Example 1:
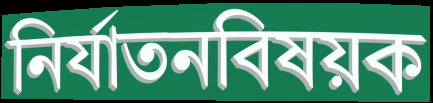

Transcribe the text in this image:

নির্যাতনবিষয়ক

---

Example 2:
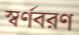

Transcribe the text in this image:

স্বর্ণবরণ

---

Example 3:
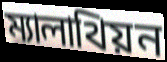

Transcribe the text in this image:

ম্যালাথিয়ন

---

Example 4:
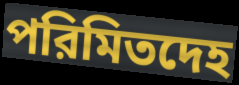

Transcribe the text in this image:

পরিমিতদেহ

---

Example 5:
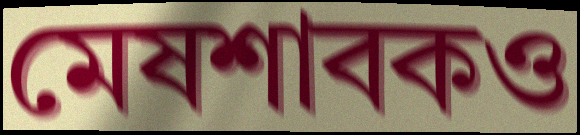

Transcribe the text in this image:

মেষশাবকও